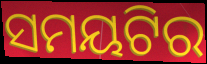
ସମୟଟିର